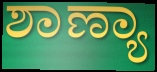
ಶಾಣ್ಯಾ